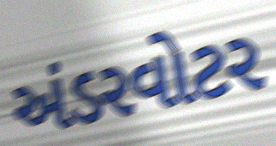
અંડરવોટર